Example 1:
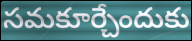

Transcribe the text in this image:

సమకూర్చేందుకు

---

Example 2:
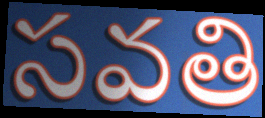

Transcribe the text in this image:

సవతి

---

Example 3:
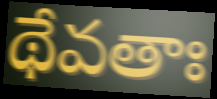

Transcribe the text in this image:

థేవతాః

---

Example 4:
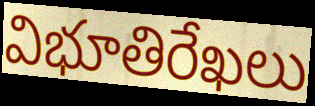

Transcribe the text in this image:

విభూతిరేఖలు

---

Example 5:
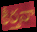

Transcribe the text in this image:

కీర్తనా